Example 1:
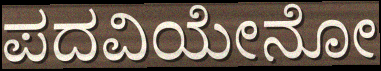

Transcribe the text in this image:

ಪದವಿಯೇನೋ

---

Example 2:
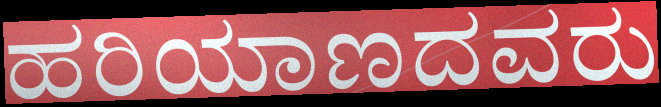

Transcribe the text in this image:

ಹರಿಯಾಣದವರು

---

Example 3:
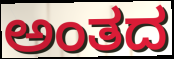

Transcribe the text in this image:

ಅಂತದ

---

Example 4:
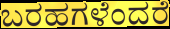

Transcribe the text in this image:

ಬರಹಗಳೆಂದರೆ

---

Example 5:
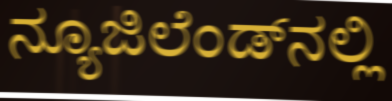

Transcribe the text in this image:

ನ್ಯೂಜಿಲೆಂಡ್‌ನಲ್ಲಿ